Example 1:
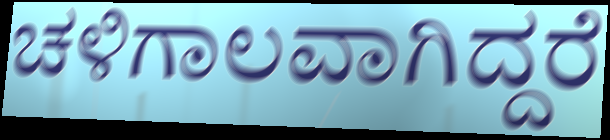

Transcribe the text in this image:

ಚಳಿಗಾಲವಾಗಿದ್ದರೆ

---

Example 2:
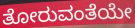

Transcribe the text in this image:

ತೋರುವಂತೆಯೇ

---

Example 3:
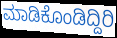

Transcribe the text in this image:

ಮಾಡಿಕೊಂಡಿದ್ದಿರಿ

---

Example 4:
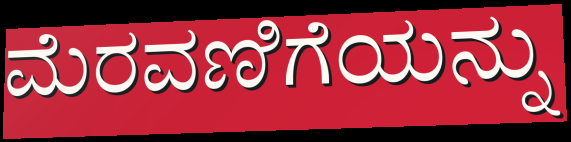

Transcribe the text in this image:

ಮೆರವಣಿಗೆಯನ್ನು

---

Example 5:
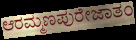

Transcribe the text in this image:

ಆರಮ್ಮಣಪುರೇಜಾತಂ